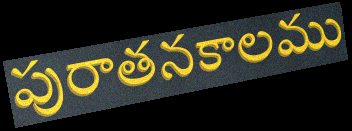
పురాతనకాలము